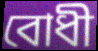
বোধী